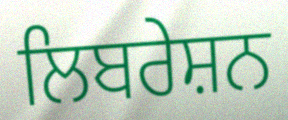
ਲਿਬਰੇਸ਼ਨ